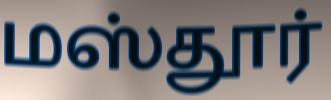
மஸ்தூர்